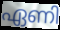
ഏണി